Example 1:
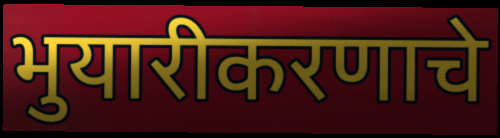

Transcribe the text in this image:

भुयारीकरणाचे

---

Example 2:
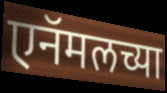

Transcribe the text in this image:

एनॅमलच्या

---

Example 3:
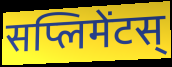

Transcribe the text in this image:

सप्लिमेंटस्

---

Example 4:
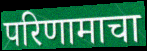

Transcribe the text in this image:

परिणामाचा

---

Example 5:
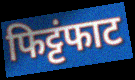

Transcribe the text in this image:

फिट्टंफाट